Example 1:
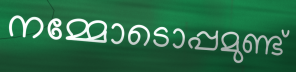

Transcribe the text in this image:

നമ്മോടൊപ്പമുണ്ട്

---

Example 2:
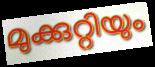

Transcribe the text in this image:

മുക്കുറ്റിയും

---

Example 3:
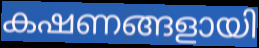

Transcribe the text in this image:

കഷണങ്ങളായി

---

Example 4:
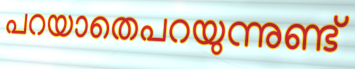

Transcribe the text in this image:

പറയാതെപറയുന്നുണ്ട്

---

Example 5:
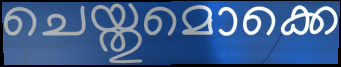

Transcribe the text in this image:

ചെയ്തുമൊക്കെ